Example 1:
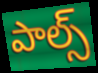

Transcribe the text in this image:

పాల్స్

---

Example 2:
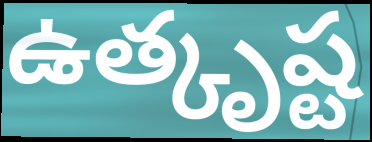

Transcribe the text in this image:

ఉత్కృష్ట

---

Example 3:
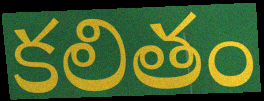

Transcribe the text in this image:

కలితం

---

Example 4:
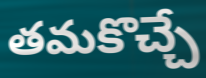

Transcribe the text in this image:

తమకొచ్చే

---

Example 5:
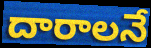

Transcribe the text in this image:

దారాలనే